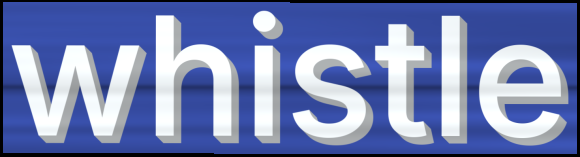
whistle